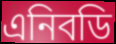
এনিবডি